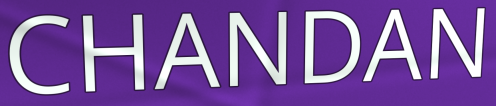
CHANDAN